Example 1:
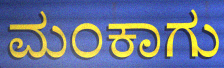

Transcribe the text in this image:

ಮಂಕಾಗು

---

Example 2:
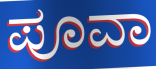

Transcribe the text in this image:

ಪೂವಾ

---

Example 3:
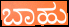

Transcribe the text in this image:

ಬಾಹು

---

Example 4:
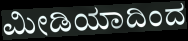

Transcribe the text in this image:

ಮೀಡಿಯಾದಿಂದ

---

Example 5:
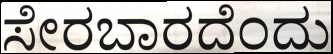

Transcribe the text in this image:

ಸೇರಬಾರದೆಂದು